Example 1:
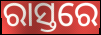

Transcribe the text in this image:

ରାସ୍ତରେ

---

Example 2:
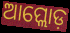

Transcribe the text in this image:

ଆପ୍ଲୋଡ଼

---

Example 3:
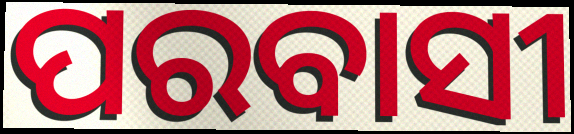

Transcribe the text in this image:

ପରବାସୀ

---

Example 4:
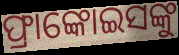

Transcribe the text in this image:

ଫ୍ରାଙ୍କୋଇସଙ୍କୁ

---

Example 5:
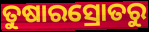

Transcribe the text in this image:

ତୁଷାରସ୍ରୋତରୁ